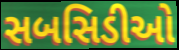
સબસિડીઓ